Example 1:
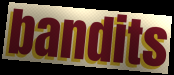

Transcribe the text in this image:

bandits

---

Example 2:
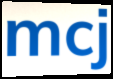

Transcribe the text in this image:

mcj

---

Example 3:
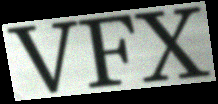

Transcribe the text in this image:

VFX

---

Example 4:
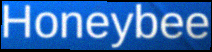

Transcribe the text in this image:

Honeybee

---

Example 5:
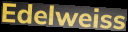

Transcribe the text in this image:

Edelweiss